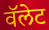
वॅलेट